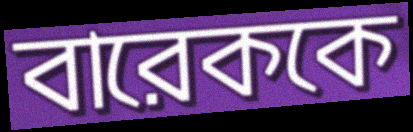
বারেককে